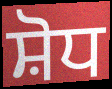
ਸ਼ੋਧ